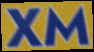
XM